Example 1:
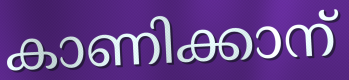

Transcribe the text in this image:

കാണിക്കാന്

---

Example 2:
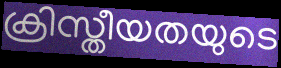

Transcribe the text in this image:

ക്രിസ്തീയതയുടെ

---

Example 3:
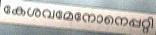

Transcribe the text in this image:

കേശവമേനോനെപ്പറ്റി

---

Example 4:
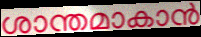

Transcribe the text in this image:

ശാന്തമാകാൻ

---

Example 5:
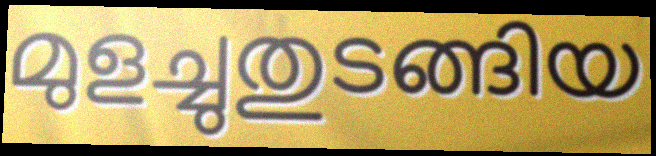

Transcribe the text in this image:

മുളച്ചുതുടങ്ങിയ